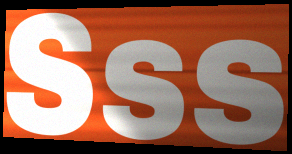
Sss